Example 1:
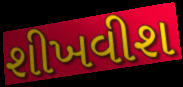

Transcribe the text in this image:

શીખવીશ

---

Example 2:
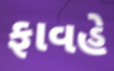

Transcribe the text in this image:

ફાવહે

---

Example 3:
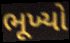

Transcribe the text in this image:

ભૂખ્યો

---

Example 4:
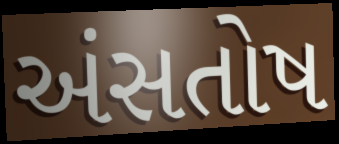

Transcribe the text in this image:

અંસતોષ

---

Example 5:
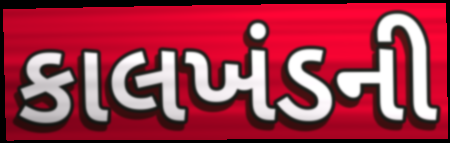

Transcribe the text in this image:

કાલખંડની